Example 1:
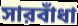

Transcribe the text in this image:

সারবাঁধা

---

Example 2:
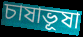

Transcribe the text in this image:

চাষাভূষা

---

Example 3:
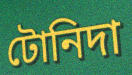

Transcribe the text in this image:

টোনিদা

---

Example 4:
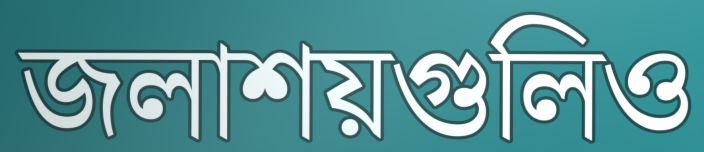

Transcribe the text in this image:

জলাশয়গুলিও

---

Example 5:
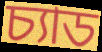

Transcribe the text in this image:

চ্যাড